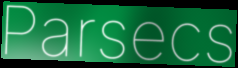
Parsecs